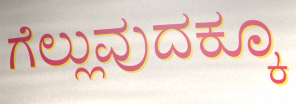
ಗೆಲ್ಲುವುದಕ್ಕೂ